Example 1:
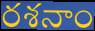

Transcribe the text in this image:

రశనాం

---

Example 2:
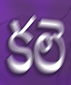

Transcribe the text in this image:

కలె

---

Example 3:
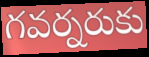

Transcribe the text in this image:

గవర్నరుకు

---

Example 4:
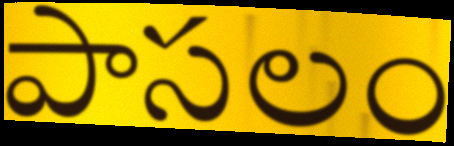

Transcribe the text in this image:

పాసలం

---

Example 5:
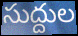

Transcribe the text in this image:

సుద్దుల